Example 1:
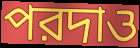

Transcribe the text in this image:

পরদাও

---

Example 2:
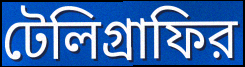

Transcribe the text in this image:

টেলিগ্রাফির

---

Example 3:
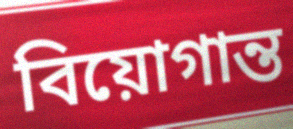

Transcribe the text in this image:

বিয়োগান্ত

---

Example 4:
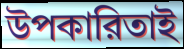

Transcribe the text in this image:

উপকারিতাই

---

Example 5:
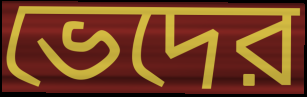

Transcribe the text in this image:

ভেদের